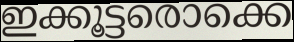
ഇക്കൂട്ടരൊക്കെ